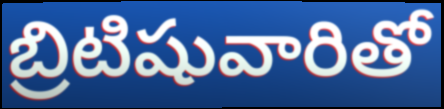
బ్రిటిషువారితో